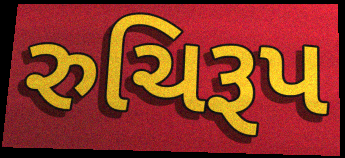
રુચિરૂપ